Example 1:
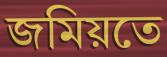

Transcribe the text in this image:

জমিয়তে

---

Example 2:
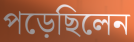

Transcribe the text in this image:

পড়েছিলেন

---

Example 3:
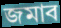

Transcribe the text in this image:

জমাব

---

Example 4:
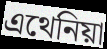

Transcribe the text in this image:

এথেনিয়া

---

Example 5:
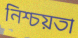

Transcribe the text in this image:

নিশ্চয়তা